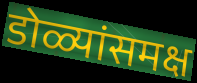
डोळ्यांसमक्ष